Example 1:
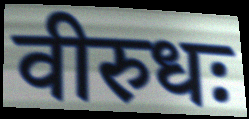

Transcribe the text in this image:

वीरुधः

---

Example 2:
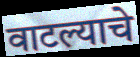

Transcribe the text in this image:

वाटल्याचे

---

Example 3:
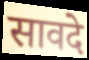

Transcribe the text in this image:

सावदे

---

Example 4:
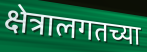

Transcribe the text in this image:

क्षेत्रालगतच्या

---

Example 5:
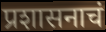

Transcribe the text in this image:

प्रशासनाचं